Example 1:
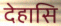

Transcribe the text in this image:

देहासि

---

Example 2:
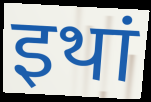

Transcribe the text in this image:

इथां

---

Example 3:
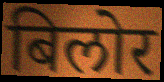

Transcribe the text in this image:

बिलोर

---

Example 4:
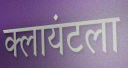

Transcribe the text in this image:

क्लायंटला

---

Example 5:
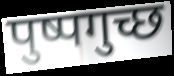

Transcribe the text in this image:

पुष्पगुच्छ